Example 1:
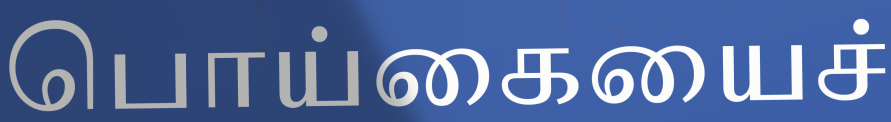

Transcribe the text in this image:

பொய்கையைச்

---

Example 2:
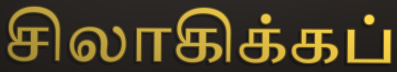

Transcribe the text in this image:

சிலாகிக்கப்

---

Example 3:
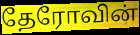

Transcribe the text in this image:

தேரோவின்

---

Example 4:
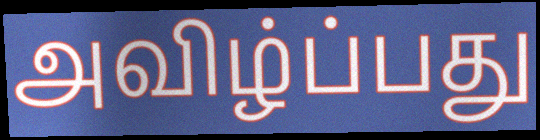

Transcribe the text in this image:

அவிழ்ப்பது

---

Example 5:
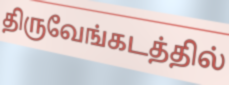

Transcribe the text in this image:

திருவேங்கடத்தில்